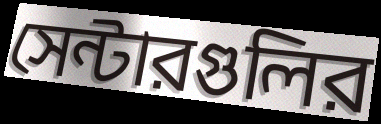
সেন্টারগুলির